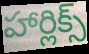
హార్లిక్స్